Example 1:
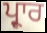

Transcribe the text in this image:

ਪ੍ਰ੍ਵਾਰ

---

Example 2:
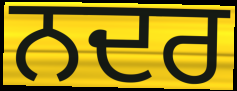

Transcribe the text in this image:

ਨਦਰ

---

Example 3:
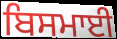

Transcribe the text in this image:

ਬਿਸਮਾਈ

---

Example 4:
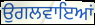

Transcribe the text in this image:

ਉਗਲਵਾਇਆਂ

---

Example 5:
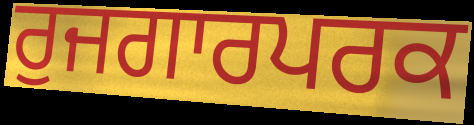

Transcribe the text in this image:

ਰੁਜਗਾਰਪਰਕ